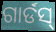
ଗାର୍ଡସ୍